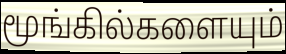
மூங்கில்களையும்